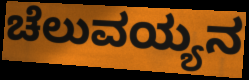
ಚೆಲುವಯ್ಯನ